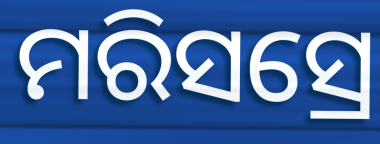
ମରିସସ୍ରେ